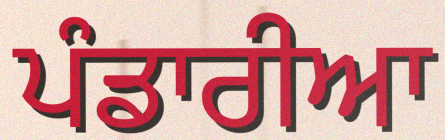
ਪੰਡਾਰੀਆ